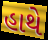
હાથે